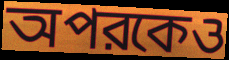
অপরকেও